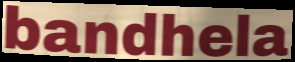
bandhela